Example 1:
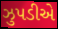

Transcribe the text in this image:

ઝુપડીએ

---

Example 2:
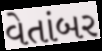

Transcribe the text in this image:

વેતાંબર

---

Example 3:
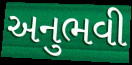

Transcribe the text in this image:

અનુભવી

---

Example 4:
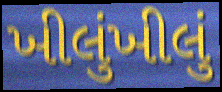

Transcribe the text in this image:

ખીલુંખીલું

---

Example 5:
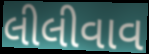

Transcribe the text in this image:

લીલીવાવ